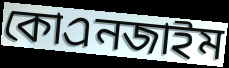
কোএনজাইম